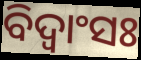
ବିଦ୍ଵାଂସଃ